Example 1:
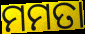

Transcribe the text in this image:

ମମତା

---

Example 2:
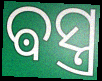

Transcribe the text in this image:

ଵସ୍ତ୍ର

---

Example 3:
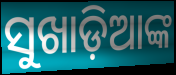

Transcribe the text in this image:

ସୁଖାଡ଼ିଆଙ୍କ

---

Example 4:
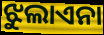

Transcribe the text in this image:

ଝୁଲାଏନା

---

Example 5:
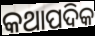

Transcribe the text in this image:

କଥାପଦିକ